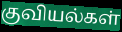
குவியல்கள்